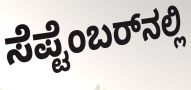
ಸೆಪ್ಟೆಂಬರ್‌ನಲ್ಲಿ